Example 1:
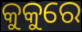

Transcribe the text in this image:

କୁକୁରେ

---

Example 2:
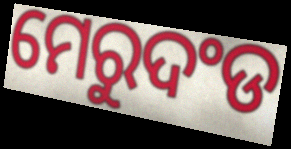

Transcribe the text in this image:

ମେରୁଦଂଡ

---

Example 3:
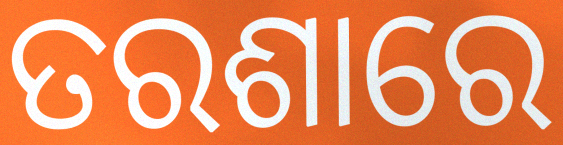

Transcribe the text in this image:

ତରଶାରେ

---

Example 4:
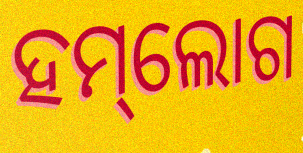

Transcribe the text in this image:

ହମ୍‌ଲୋଗ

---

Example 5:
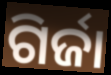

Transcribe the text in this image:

ଗିର୍ଜା